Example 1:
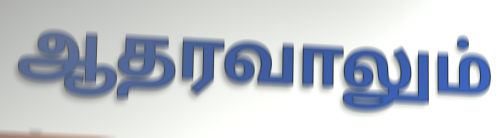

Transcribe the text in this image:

ஆதரவாலும்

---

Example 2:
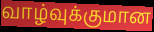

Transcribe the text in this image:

வாழ்வுக்குமான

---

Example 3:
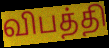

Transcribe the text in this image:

விபத்தி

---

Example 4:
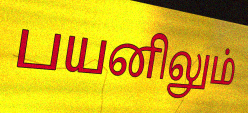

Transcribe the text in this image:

பயனிலும்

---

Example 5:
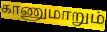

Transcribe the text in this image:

காணுமாறும்